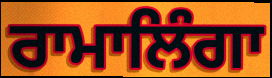
ਰਾਮਾਲਿੰਗਾ